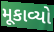
મૂકાવ્યો